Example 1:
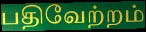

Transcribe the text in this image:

பதிவேற்றம்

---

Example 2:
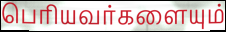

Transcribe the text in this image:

பெரியவர்களையும்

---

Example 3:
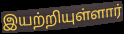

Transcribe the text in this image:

இயற்றியுள்ளார்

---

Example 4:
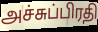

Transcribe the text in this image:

அச்சுப்பிரதி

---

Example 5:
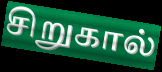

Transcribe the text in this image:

சிறுகால்